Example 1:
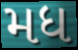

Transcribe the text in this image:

મધ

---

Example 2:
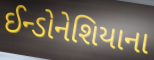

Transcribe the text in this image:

ઈન્ડોનેશિયાના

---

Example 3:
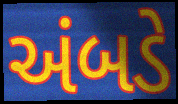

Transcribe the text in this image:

અંબડે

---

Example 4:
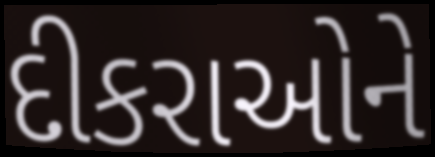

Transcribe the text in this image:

દીકરાઓને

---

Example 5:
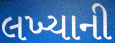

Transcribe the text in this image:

લખ્યાની